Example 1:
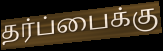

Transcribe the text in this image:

தர்ப்பைக்கு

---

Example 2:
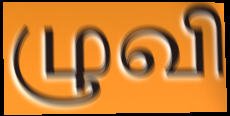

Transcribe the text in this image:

ழுவி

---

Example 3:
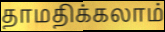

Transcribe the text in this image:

தாமதிக்கலாம்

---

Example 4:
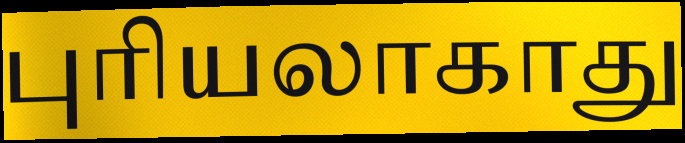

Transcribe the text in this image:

புரியலாகாது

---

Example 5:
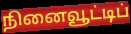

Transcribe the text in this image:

நினைவூட்டிப்